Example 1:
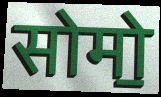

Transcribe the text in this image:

सोमो॒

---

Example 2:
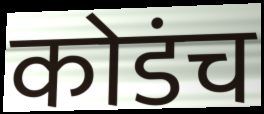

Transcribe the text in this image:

कोडंच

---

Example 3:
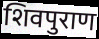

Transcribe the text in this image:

शिवपुराण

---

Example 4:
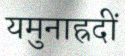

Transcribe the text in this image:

यमुनाह्रदीं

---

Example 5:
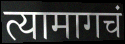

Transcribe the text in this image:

त्यामागचं